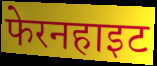
फेरनहाइट